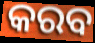
କରବ